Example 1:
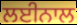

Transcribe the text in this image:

ਲਈਨਾਲ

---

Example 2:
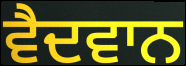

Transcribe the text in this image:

ਵੈਦਵਾਨ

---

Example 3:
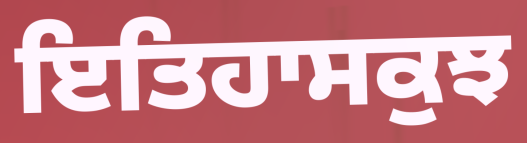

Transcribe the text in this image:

ਇਤਿਹਾਸਕੁਝ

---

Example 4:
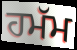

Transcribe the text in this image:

ਹਮੱਮ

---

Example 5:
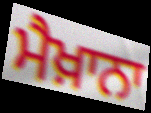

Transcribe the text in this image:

ਮੈਖ਼ਾਨਾ